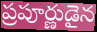
ప్రపూర్ణుడైన